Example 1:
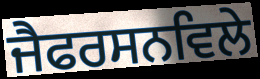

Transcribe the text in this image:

ਜੈਫਰਸਨਵਿਲੇ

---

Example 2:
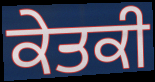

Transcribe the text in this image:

ਕੇਤਕੀ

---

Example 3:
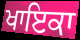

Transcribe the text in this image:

ਖਾਇਕਾ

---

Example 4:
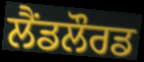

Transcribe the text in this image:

ਲੈਂਡਲੌਰਡ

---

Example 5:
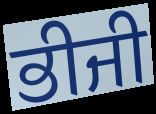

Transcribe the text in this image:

ਭੀਜੀ